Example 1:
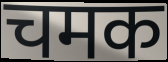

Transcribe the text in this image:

चमक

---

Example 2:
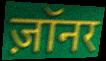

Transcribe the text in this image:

ज़ॉनर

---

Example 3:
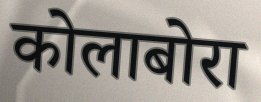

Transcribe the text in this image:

कोलाबोरा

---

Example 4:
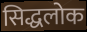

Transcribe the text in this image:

सिद्धलोक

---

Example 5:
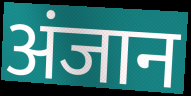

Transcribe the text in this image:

अंजान